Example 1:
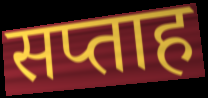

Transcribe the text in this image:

सप्ताह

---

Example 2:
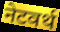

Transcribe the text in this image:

नेटवर्थ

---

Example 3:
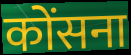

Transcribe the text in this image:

कोंसना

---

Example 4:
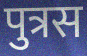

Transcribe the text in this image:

पुत्रस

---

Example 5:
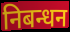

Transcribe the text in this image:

निबन्धन